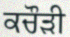
ਕਚੌੜੀ